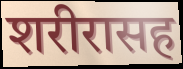
शरीरासह